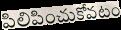
పిలిపించుకోవటం